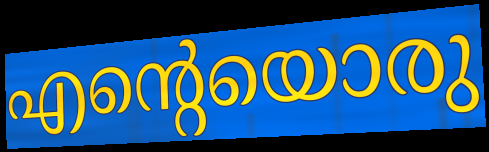
എന്റെയൊരു